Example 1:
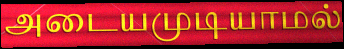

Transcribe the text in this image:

அடையமுடியாமல்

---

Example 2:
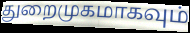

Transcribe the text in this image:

துறைமுகமாகவும்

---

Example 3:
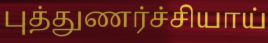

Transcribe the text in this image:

புத்துணர்ச்சியாய்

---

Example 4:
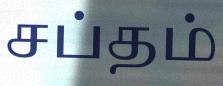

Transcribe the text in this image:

சப்தம்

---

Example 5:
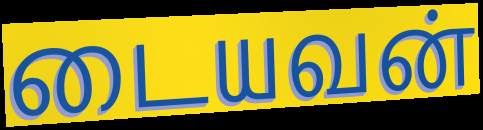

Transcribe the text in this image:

டையவன்